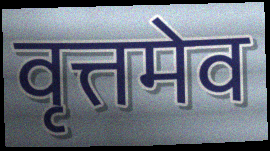
वृत्तमेव